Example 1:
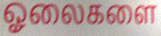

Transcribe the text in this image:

ஓலைகளை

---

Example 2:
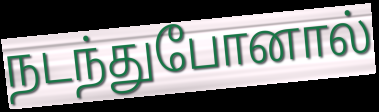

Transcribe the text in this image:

நடந்துபோனால்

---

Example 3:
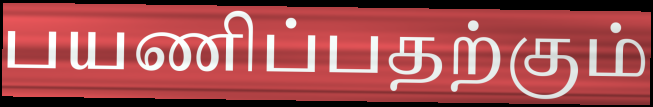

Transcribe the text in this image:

பயணிப்பதற்கும்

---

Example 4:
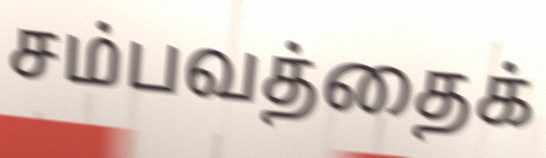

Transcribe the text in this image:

சம்பவத்தைக்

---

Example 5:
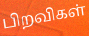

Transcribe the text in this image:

பிறவிகள்